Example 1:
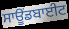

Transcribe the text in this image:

ਸਾਊਂਡਬਾਈਟ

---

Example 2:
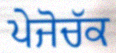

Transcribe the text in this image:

ਪੇਜੋਚੱਕ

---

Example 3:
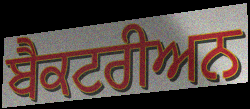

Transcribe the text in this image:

ਬੈਕਟਰੀਅਨ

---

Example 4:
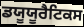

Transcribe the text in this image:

ਡਯੂਯੂਰੈਟਿਕਸ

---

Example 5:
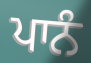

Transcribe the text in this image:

ਪਾਨੰ